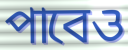
পাবেও